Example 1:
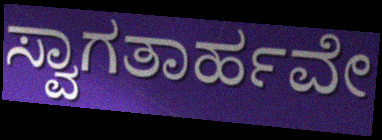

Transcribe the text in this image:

ಸ್ವಾಗತಾರ್ಹವೇ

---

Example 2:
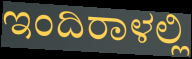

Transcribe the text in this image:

ಇಂದಿರಾಳಲ್ಲಿ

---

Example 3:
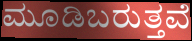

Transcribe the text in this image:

ಮೂಡಿಬರುತ್ತವೆ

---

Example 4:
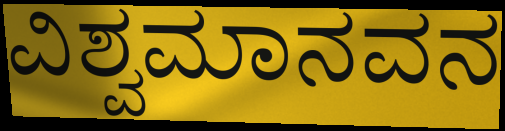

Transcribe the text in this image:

ವಿಶ್ವಮಾನವನ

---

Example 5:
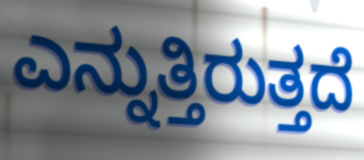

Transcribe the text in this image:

ಎನ್ನುತ್ತಿರುತ್ತದೆ